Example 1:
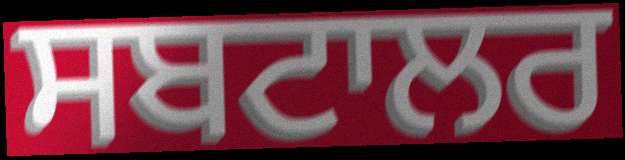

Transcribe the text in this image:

ਸਬਟਾਲਰ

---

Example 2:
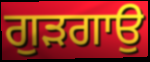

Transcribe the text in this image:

ਗੁੜਗਾਉ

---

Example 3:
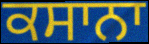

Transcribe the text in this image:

ਕਸਾਨਾ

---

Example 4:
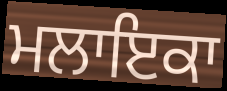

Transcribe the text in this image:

ਮਲਾਇਕਾ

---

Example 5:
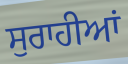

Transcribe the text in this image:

ਸੁਰਾਹੀਆਂ